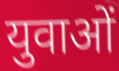
युवाओं